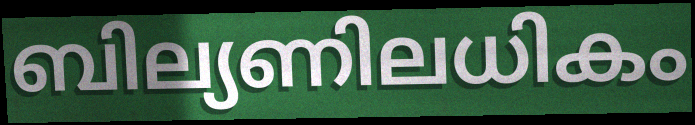
ബില്യണിലധികം